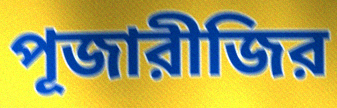
পূজারীজির